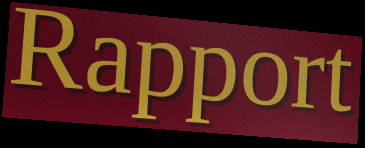
Rapport